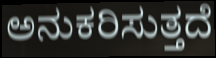
ಅನುಕರಿಸುತ್ತದೆ